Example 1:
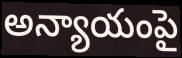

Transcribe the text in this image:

అన్యాయంపై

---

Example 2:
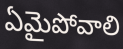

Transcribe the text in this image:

ఏమైపోవాలి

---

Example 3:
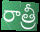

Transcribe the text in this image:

రాత్రీ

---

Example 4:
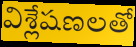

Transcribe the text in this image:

విశ్లేషణలతో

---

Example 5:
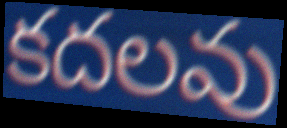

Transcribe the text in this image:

కదలవు